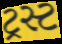
ટ્રસ્ટ